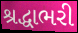
શ્રદ્ધાભરી